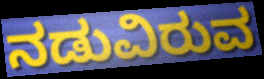
ನಡುವಿರುವ